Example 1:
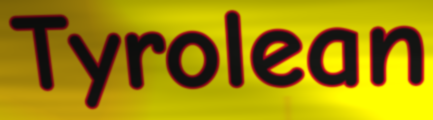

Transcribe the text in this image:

Tyrolean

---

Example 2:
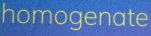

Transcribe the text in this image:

homogenate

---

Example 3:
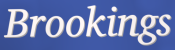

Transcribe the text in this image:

Brookings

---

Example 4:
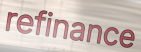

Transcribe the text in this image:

refinance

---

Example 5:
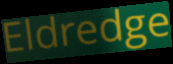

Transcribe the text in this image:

Eldredge